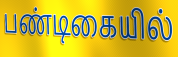
பண்டிகையில்